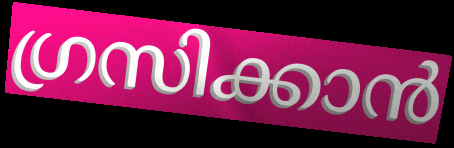
ഗ്രസിക്കാൻ